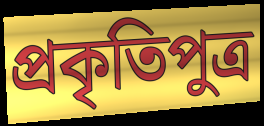
প্রকৃতিপুত্র